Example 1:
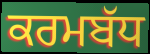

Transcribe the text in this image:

ਕਰਮਬੱਧ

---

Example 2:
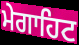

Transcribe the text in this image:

ਮੇਗਾਹਿਟ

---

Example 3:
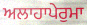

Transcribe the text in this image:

ਅਲਾਹਾਪੇਰੁਮਾ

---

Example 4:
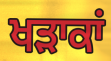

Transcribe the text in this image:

ਖੜਾਕਾਂ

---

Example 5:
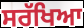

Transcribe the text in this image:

ਸਰੱਖਿਆ